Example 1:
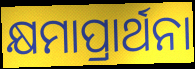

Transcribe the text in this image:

କ୍ଷମାପ୍ରାର୍ଥନା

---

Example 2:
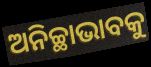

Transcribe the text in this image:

ଅନିଚ୍ଛାଭାବକୁ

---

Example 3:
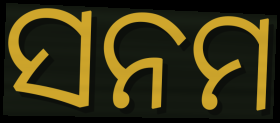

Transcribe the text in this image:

ସନମ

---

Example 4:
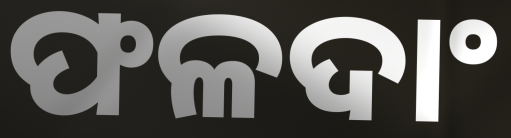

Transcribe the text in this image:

ଫଳଦାଂ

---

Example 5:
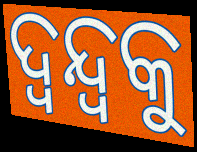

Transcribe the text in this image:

ଦ୍ଵନ୍ଦ୍ଵକୁ